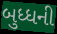
બુધ્ધની